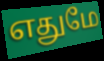
எதுமே